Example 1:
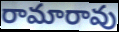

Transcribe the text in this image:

రామారావు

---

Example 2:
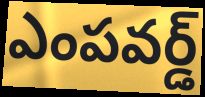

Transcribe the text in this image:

ఎంపవర్డ్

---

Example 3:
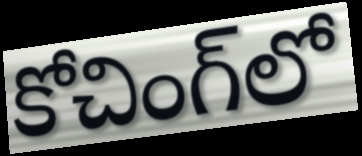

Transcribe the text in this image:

కోచింగ్‌లో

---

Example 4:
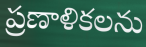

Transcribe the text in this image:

ప్రణాళికలను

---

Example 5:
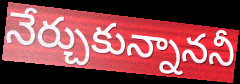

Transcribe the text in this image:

నేర్చుకున్నాననీ